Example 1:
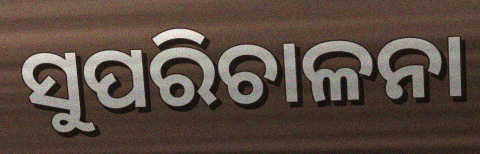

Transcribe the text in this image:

ସୁପରିଚାଳନା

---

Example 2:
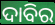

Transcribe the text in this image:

ଦାବିର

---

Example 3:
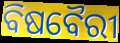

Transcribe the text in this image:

ବିଷବୈରୀ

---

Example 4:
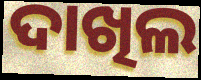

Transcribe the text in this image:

ଦାଖିଲ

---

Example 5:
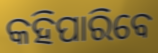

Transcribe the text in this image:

କହିପାରିବେ